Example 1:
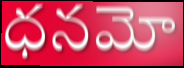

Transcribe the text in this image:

ధనమో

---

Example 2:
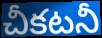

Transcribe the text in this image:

చీకటనీ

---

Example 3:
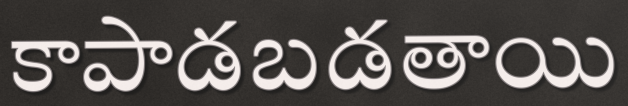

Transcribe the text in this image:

కాపాడబడతాయి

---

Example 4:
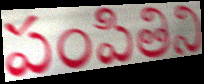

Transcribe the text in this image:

పంపితిని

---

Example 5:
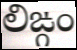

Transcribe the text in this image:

లిఙ్గం